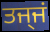
ਤਜ੍ਜਂ